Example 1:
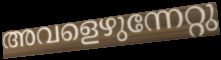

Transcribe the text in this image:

അവളെഴുന്നേറ്റു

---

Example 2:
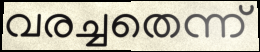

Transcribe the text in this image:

വരച്ചതെന്ന്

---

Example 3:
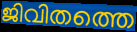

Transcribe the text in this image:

ജിവിതത്തെ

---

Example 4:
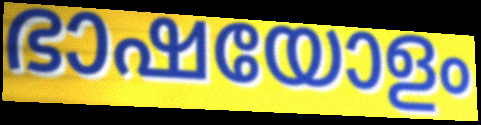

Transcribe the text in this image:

ഭാഷയോളം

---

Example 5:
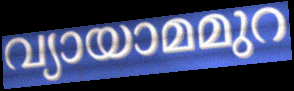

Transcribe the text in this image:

വ്യായാമമുറ